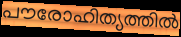
പൗരോഹിത്യത്തിൽ